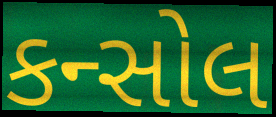
કન્સોલ